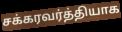
சக்கரவர்த்தியாக